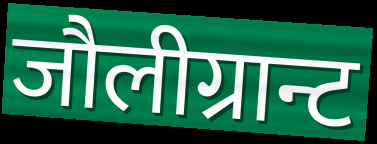
जौलीग्रान्ट